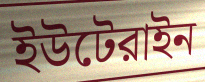
ইউটেরাইন